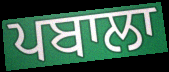
ਪਬਾਲਾ